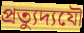
প্রত্যুদ্যযৌ